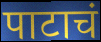
पाटाचं